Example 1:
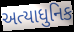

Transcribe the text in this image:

અત્યાધુનિક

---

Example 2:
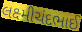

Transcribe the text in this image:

લક્ષ્મીચંદભાઈ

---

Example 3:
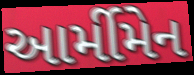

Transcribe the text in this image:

આર્મીમેન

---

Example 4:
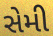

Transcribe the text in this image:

સેમી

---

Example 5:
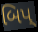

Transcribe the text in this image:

બિપ્